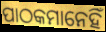
ପାଠକମାନେହିଁ